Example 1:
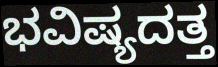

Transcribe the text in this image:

ಭವಿಷ್ಯದತ್ತ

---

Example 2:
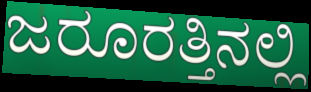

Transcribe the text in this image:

ಜರೂರತ್ತಿನಲ್ಲಿ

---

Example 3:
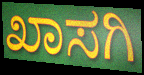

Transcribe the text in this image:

ಖಾಸಗಿ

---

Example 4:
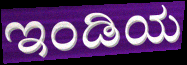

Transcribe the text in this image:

ಇಂಡಿಯ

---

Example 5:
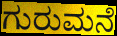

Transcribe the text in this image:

ಗುರುಮನೆ